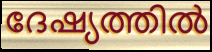
ദേഷ്യത്തിൽ